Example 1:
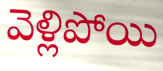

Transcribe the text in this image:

వెళ్లిపోయి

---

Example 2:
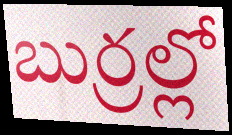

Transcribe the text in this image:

బుర్రల్లో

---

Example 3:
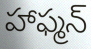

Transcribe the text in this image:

హాఫ్మన్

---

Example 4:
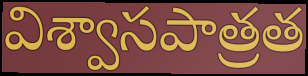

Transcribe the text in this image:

విశ్వాసపాత్రత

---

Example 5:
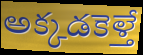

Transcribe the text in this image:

అక్కడకెళ్తే